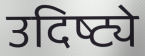
उदिष्ट्ये